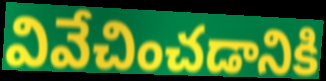
వివేచించడానికి